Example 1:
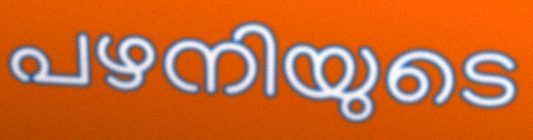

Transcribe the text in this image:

പഴനിയുടെ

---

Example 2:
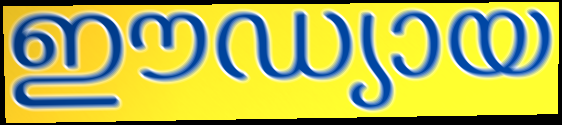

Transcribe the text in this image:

ഈഡ്യായ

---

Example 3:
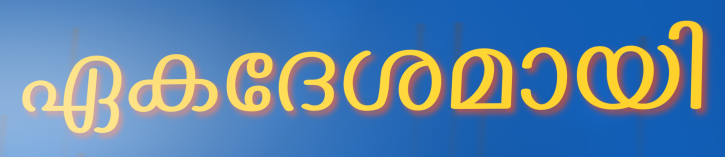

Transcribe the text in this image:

ഏകദേശമായി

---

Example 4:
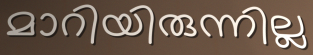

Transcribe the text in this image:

മാറിയിരുന്നില്ല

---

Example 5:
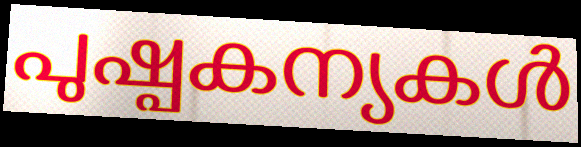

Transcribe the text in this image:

പുഷ്പകന്യകൾ